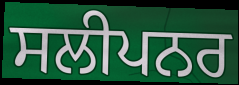
ਸਲੀਪਨਰ